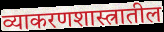
व्याकरणशास्त्रातील